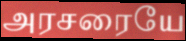
அரசரையே